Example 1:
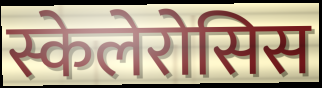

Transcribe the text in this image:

स्केलेरोसिस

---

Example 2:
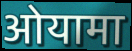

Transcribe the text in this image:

ओयामा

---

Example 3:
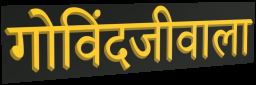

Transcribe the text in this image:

गोविंदजीवाला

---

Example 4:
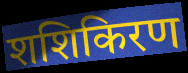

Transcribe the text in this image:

शशिकिरण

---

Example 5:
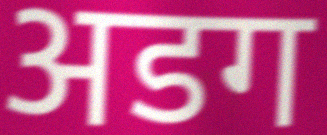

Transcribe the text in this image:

अडग